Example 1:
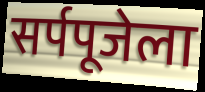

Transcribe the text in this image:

सर्पपूजेला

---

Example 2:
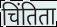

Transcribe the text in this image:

चिंतिता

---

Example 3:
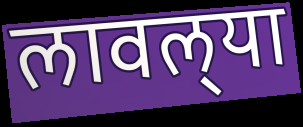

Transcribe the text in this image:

लावल्या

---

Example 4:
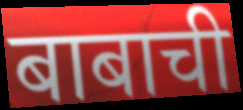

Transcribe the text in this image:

बाबाची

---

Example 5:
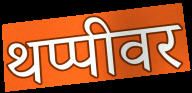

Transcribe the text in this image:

थप्पीवर